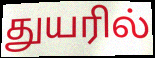
துயரில்